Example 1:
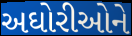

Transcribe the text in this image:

અઘોરીઓને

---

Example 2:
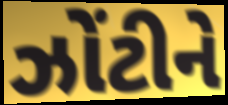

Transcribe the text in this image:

ઝોંટીને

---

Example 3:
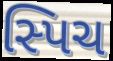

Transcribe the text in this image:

સ્પિચ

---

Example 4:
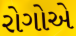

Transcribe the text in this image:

રોગોએ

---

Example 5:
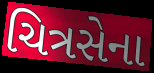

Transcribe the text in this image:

ચિત્રસેના